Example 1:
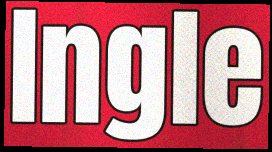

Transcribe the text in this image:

Ingle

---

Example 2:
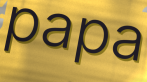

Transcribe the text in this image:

papa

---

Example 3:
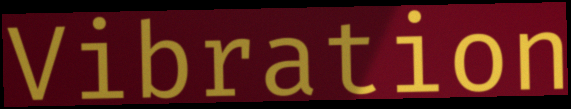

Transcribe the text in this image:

Vibration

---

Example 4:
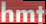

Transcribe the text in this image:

hmt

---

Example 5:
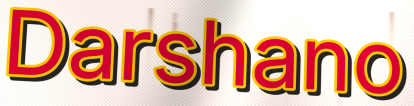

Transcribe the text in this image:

Darshano